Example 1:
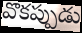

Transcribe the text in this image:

వొకప్పుడు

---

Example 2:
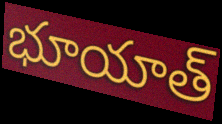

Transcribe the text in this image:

భూయాత్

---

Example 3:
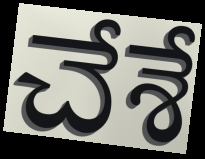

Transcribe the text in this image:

చేశే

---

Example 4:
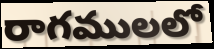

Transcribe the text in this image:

రాగములలో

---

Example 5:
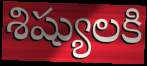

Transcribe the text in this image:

శిష్యులకి